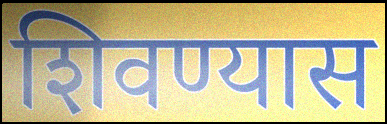
शिवण्यास